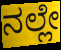
ನಲ್ಲೇ